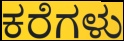
ಕರೆಗಳು